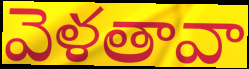
వెళతావా